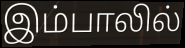
இம்பாலில்